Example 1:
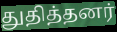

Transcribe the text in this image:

துதித்தனர்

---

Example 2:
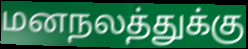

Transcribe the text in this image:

மனநலத்துக்கு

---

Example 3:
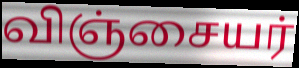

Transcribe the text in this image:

விஞ்சையர்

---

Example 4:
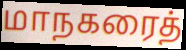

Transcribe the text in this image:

மாநகரைத்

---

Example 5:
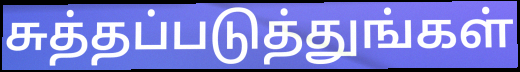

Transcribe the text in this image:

சுத்தப்படுத்துங்கள்